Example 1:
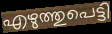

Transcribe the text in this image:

എഴുത്തുപെട്ടി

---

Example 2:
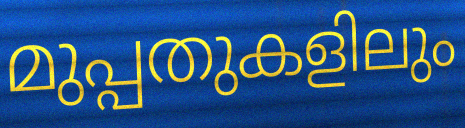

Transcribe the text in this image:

മുപ്പതുകളിലും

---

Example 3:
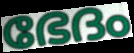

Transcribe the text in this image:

ഭേദം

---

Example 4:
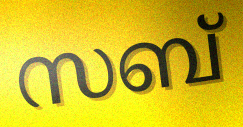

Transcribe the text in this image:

സബ്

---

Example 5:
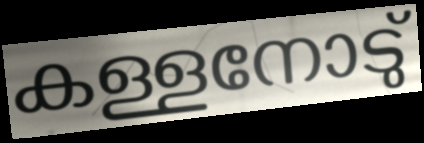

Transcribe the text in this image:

കള്ളനോടു്